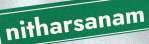
nitharsanam